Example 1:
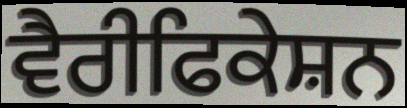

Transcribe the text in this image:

ਵੈਰੀਫਿਕੇਸ਼ਨ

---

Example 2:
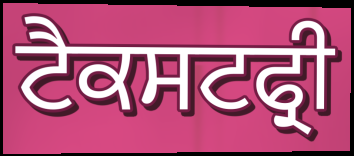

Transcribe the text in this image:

ਟੈਕਸਟਫ੍ਰੀ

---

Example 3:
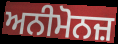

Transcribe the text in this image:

ਅਨੀਮੋਨਜ਼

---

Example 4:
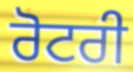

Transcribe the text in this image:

ਰੋਟਰੀ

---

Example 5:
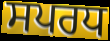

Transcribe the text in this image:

ਸਪਰਧ